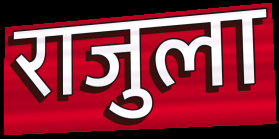
राजुला